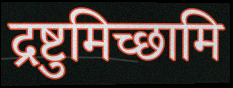
द्रष्टुमिच्छामि